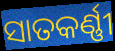
ସାତକର୍ଣ୍ଣୀ